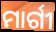
ମାର୍ଗୀ